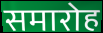
समारोह